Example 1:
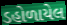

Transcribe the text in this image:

ડહોળાયેલ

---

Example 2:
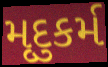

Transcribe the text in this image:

મૃદુકર્મ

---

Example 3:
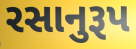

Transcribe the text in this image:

રસાનુરૂપ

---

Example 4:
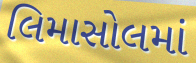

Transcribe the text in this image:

લિમાસોલમાં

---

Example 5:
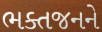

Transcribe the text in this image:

ભક્તજનને